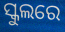
ସ୍କୁଲରେ